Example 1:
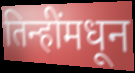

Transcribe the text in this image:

तिन्हींमधून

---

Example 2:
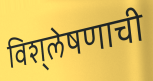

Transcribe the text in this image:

विश्लेषणाची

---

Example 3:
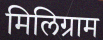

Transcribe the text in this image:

मिलिग्राम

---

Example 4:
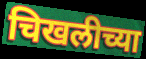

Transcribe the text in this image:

चिखलीच्या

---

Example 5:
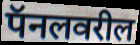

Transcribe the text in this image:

पॅनलवरील